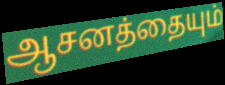
ஆசனத்தையும்